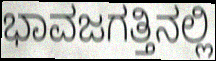
ಭಾವಜಗತ್ತಿನಲ್ಲಿ